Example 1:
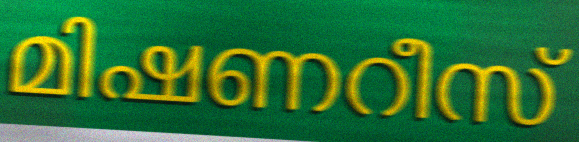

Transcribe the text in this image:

മിഷണറീസ്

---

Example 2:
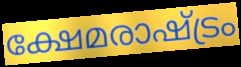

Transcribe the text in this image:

ക്ഷേമരാഷ്ട്രം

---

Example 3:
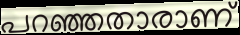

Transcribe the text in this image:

പറഞ്ഞതാരാണ്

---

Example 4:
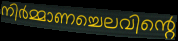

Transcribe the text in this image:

നിർമ്മാണച്ചെലവിന്റെ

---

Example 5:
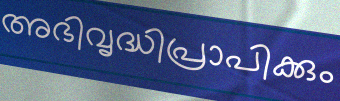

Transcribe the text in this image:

അഭിവൃദ്ധിപ്രാപിക്കും